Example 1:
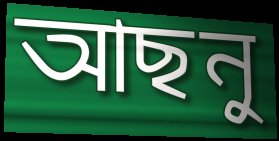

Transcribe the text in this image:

আছনু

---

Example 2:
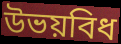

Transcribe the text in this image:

উভয়বিধ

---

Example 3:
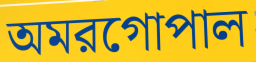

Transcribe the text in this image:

অমরগোপাল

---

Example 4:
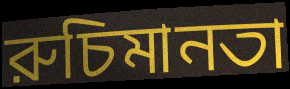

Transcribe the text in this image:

রুচিমানতা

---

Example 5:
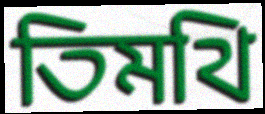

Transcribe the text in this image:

তিমথি